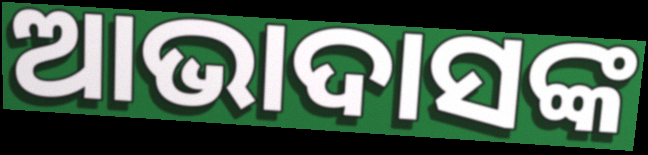
ଆଭାଦାସଙ୍କ